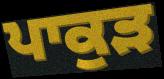
ਪਾਕੁੜ